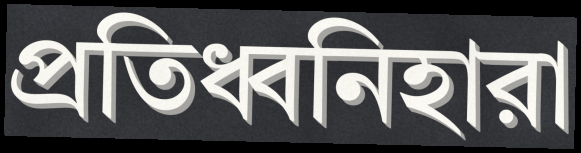
প্রতিধ্বনিহারা